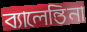
ব্যালেন্তিনা